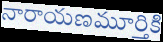
నారాయణమూర్తికి